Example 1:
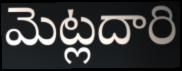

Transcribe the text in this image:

మెట్లదారి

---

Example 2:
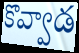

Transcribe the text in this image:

కొవ్వాడ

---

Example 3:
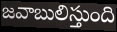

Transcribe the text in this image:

జవాబులిస్తుంది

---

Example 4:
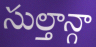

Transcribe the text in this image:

సుల్తాన్గా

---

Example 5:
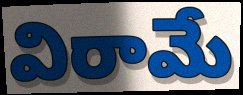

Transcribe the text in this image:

విరామే